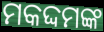
ମକଦ୍ଦମଙ୍କ